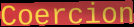
Coercion